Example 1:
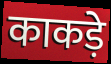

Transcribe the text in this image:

काकड़े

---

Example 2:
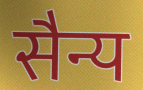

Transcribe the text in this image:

सैन्‍य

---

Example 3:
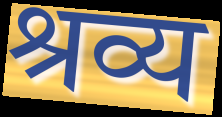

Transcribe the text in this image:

श्रव्य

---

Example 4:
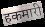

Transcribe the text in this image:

हकमारी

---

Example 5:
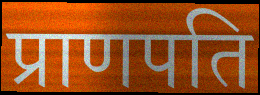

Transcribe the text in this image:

प्राणपति